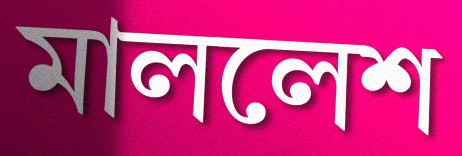
মাললেশ